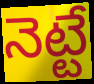
నెట్టే